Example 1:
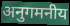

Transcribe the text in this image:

अनुगमनीय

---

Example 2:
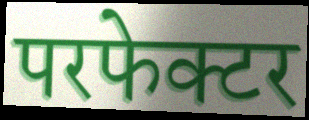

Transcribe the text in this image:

परफेक्टर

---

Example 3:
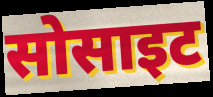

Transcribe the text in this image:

सोसाइट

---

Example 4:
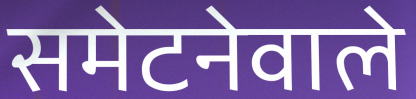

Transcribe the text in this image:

समेटनेवाले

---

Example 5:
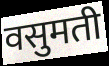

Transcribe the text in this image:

वसुमती